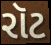
રૉટ